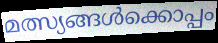
മത്സ്യങ്ങൾക്കൊപ്പം